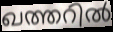
ഖത്തറിൽ